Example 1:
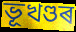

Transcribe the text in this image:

ভূখণ্ডৰ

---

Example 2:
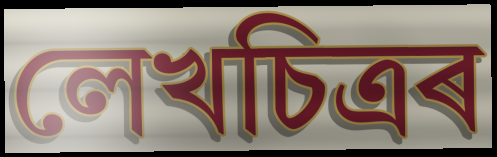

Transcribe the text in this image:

লেখচিত্ৰৰ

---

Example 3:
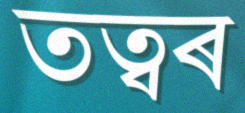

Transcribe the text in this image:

তত্বৰ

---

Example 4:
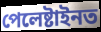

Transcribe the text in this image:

পেলেষ্টাইনত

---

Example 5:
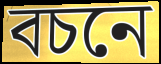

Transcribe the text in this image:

বচনে